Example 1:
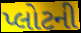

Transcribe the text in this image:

પ્લોટની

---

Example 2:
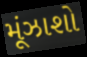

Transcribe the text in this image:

મૂંઝાશો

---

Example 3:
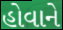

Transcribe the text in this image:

હોવાને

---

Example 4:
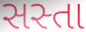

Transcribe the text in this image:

સસ્તા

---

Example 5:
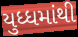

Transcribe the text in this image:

યુધ્ધમાંથી